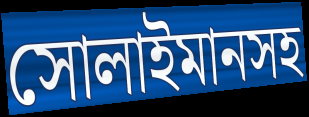
সোলাইমানসহ